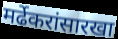
मर्ढेकरांसारखा